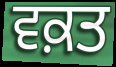
ਵਕ਼ਤ